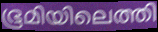
ഭൂമിയിലെത്തി